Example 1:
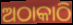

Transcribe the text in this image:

ଅଠାକାଠି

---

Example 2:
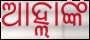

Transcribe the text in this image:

ଆହ୍ଲାଙ୍କ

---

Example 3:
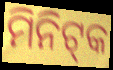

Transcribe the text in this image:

ମିନିଟ୍‍କ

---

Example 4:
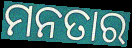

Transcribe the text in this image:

ମନତାର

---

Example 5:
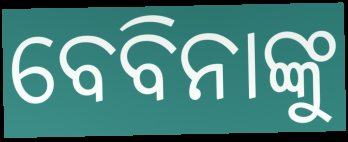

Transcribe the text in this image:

ବେବିନାଙ୍କୁ